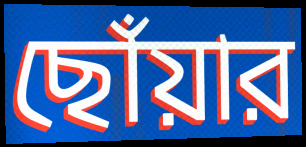
ছোঁয়ার